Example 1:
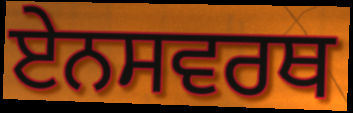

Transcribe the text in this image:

ਏਨਸਵਰਥ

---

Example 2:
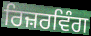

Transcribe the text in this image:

ਰਿਜ਼ਰਵਿੰਗ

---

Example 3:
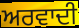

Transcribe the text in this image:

ਅਰਵਾਦੀ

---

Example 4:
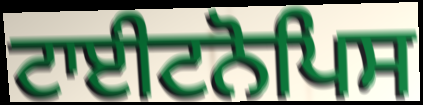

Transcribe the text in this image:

ਟਾਈਟਨੋਪਿਸ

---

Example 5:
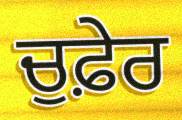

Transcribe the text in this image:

ਚੁਫ਼ੇਰ